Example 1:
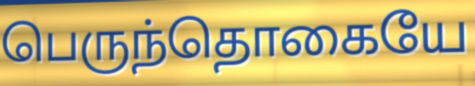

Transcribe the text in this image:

பெருந்தொகையே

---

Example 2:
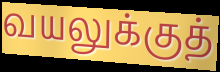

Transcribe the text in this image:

வயலுக்குத்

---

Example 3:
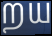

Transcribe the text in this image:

றய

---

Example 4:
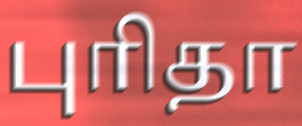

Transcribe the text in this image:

புரிதா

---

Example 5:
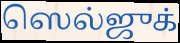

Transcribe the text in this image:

ஸெல்ஜுக்